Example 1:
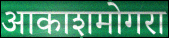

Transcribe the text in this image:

आकाशमोगरा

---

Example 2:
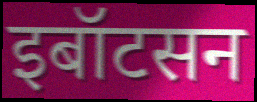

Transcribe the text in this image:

इबॉटसन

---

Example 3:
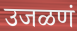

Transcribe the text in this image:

उजळणं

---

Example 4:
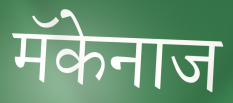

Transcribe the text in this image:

मॅकेनाज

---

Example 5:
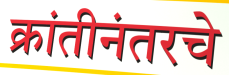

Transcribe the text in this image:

क्रांतीनंतरचे